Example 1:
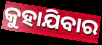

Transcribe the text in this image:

କୁହାଯିବାର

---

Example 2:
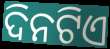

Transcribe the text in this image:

ଦିନଟିଏ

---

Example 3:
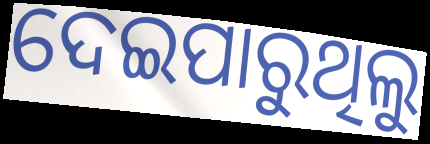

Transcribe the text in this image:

ଦେଇପାରୁଥିଲୁ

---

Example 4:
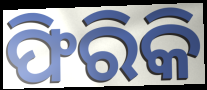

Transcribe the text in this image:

ଫିରିକି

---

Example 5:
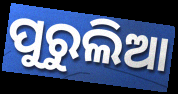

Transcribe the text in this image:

ପୁରୁଲିଆ